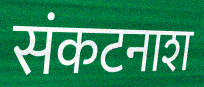
संकटनाश